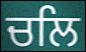
ਚਲਿ